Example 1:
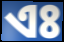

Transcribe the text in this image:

ଏଃ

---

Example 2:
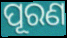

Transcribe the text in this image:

ପୂରଣ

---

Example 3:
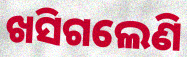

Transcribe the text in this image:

ଖସିଗଲେଣି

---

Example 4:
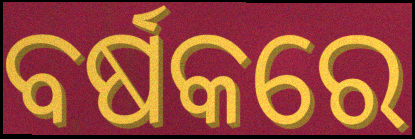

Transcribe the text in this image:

ବର୍ଷକରେ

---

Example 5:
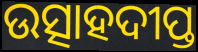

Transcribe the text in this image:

ଉତ୍ସାହଦୀପ୍ତ